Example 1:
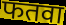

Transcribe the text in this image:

फतवा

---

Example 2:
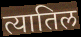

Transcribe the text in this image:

त्यातिल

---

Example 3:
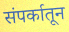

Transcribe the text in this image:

संपर्कातून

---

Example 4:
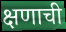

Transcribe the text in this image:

क्षणाची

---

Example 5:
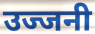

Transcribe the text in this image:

उज्जनी